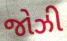
જોઝી